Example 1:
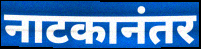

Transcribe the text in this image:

नाटकानंतर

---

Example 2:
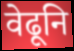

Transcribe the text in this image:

वेढूनि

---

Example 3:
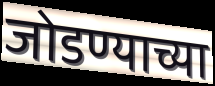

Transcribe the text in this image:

जोडण्याच्या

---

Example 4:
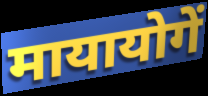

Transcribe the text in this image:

मायायोगें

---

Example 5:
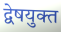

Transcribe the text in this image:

द्वेषयुक्त